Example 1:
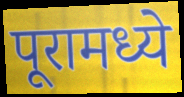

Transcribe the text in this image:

पूरामध्ये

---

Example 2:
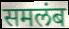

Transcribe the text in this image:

समलंब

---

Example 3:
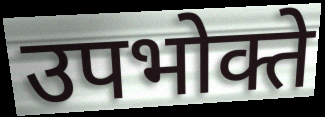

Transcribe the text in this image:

उपभोक्ते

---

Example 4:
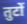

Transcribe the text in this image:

तुटों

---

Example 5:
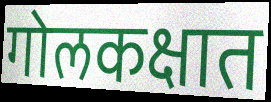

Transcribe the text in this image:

गोलकक्षात